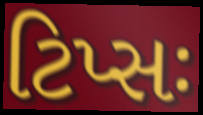
ટિપ્સઃ